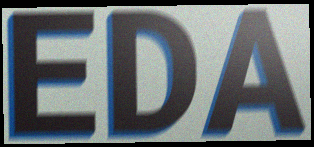
EDA